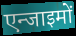
एन्जाइमों